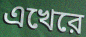
এখেরে